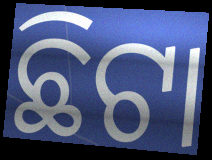
ଛିଟା